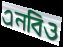
এনবিও